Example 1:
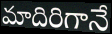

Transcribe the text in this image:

మాదిరిగానే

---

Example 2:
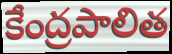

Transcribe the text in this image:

కేంద్రపాలిత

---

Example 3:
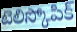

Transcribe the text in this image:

టెలిస్కోపిక్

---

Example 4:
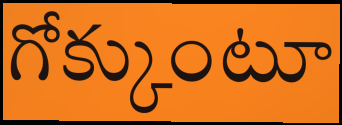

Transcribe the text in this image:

గోక్కుంటూ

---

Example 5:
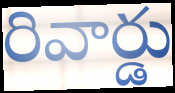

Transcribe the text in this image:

రివార్డు